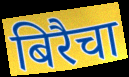
बिरैचा